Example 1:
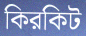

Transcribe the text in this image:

কিরকিট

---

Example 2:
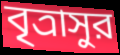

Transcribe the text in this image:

বৃত্রাসুর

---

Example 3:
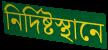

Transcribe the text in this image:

নির্দিষ্টস্থানে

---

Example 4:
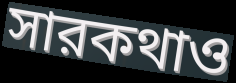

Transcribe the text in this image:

সারকথাও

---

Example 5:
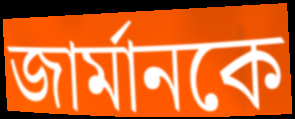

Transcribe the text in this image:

জার্মানকে